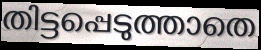
തിട്ടപ്പെടുത്താതെ